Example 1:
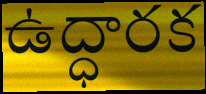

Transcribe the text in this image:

ఉద్ధారక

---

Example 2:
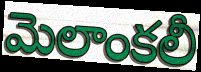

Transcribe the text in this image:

మెలాంకలీ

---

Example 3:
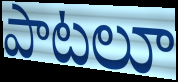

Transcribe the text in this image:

పాటలూ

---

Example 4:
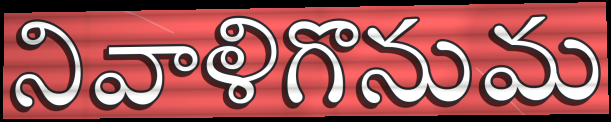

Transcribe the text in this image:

నివాళిగొనుమ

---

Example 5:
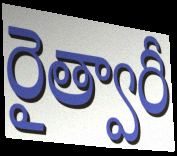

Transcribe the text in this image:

రైత్వారీ